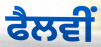
ਫੈਲਵੀਂ